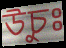
উচুঃ